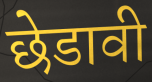
छेडावी